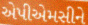
એપીએમસીને